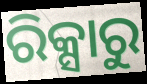
ରିକ୍ସାରୁ